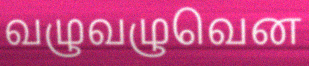
வழுவழுவென